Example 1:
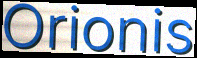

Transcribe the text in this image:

Orionis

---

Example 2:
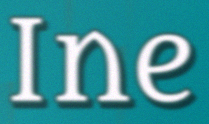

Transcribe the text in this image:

Ine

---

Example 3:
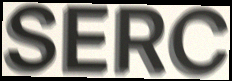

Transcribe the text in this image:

SERC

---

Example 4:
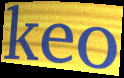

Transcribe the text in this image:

keo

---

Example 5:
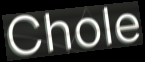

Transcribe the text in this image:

Chole